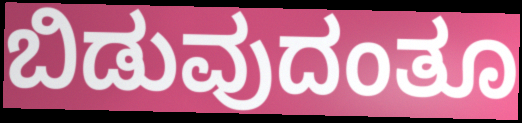
ಬಿಡುವುದಂತೂ